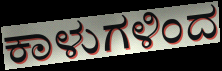
ಕಾಳುಗಳಿಂದ